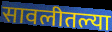
सावलीतल्या